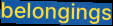
belongings